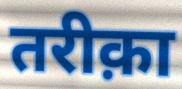
तरीक़ा